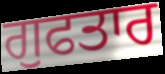
ਗੁਫਤਾਰ